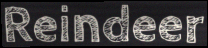
Reindeer